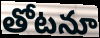
తోటనూ